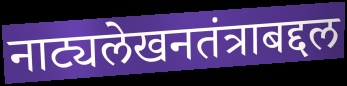
नाट्यलेखनतंत्राबद्दल